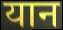
यान